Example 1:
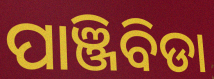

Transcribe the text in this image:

ପାଞ୍ଜିବିଡା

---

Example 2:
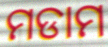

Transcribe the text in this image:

ମଡାମ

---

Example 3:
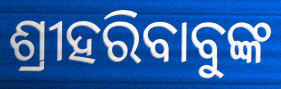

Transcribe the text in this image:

ଶ୍ରୀହରିବାବୁଙ୍କ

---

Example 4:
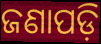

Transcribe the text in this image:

ଜଣାପଡ଼ି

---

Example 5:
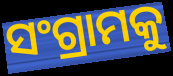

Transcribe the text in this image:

ସଂଗ୍ରାମକୁ